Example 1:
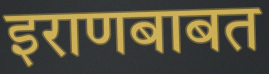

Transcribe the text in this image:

इराणबाबत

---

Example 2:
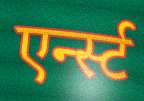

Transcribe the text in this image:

एर्न्स्ट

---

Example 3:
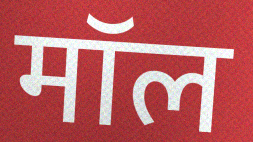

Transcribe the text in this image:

मॉल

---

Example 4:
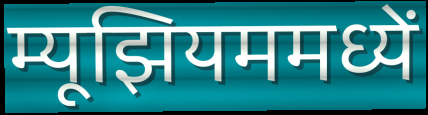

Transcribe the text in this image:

म्यूझियममध्यें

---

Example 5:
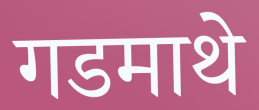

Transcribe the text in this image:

गडमाथे